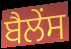
ਬੈਲੇਂਸ